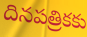
దినపత్రికకు